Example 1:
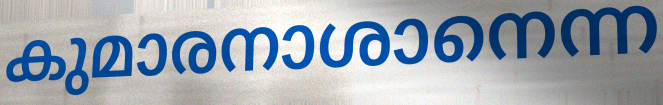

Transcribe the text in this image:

കുമാരനാശാനെന്ന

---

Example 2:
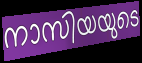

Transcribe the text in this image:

നാസിയയുടെ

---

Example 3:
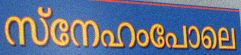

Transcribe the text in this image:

സ്നേഹംപോലെ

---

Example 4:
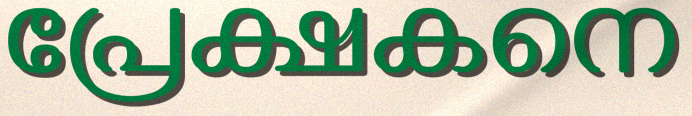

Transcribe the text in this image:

പ്രേക്ഷകനെ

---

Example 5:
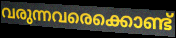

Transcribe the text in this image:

വരുന്നവരെക്കൊണ്ട്